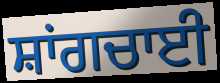
ਸ਼ਾਂਗਚਾਈ